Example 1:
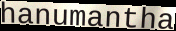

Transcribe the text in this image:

hanumantha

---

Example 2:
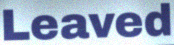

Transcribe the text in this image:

Leaved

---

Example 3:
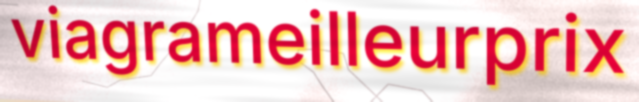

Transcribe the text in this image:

viagrameilleurprix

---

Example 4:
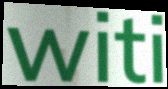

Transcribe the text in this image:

witi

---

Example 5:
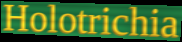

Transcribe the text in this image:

Holotrichia